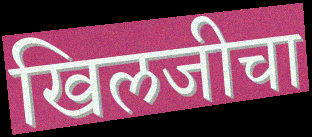
खिलजीचा